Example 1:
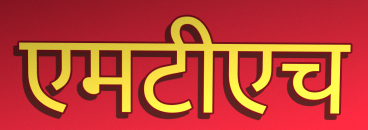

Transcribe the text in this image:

एमटीएच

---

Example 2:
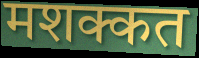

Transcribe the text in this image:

मशक्कत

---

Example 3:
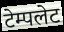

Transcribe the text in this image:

टेम्पलेट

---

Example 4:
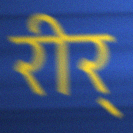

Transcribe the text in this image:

रीर्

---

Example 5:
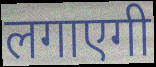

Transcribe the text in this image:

लगाएगी